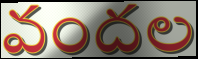
వందల